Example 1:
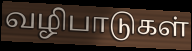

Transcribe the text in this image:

வழிபாடுகள்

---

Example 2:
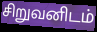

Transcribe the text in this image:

சிறுவனிடம்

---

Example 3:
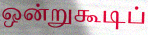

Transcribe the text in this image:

ஒன்றுகூடிப்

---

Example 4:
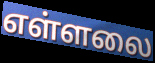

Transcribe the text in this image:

எள்ளலை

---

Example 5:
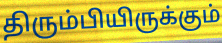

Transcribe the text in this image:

திரும்பியிருக்கும்